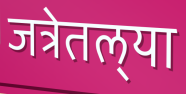
जत्रेतल्या